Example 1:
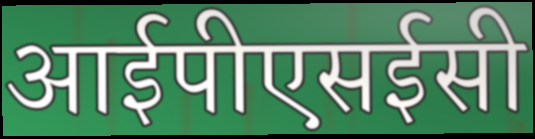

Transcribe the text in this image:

आईपीएसईसी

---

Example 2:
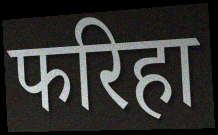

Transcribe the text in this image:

फरिहा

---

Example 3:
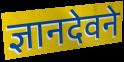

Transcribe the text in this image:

ज्ञानदेवने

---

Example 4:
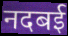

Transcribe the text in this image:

नदबई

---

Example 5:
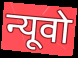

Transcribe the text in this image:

न्यूवो